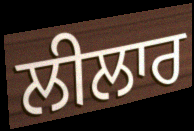
ਲੀਲਾਰ